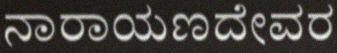
ನಾರಾಯಣದೇವರ